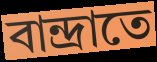
বান্দ্রাতে